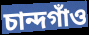
চান্দগাঁও